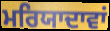
ਮਰਿਯਾਦਾਵਾਂ